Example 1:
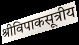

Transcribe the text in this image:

श्रीविपाकसूत्रीय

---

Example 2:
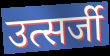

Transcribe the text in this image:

उत्सर्जी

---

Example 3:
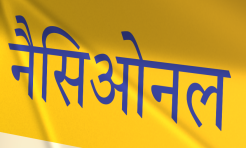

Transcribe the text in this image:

नैसिओनल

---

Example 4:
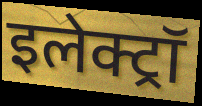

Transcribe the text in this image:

इलेक्ट्रॉ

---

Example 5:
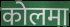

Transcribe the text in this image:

कोलमा